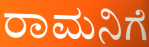
ರಾಮನಿಗೆ